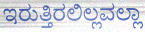
ಇರುತ್ತಿರಲಿಲ್ಲವಲ್ಲಾ